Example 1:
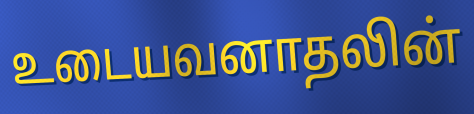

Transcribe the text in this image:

உடையவனாதலின்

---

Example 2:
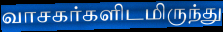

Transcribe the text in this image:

வாசகர்களிடமிருந்து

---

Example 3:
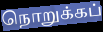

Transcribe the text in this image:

நொறுக்கப்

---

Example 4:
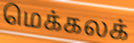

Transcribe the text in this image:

மெக்கலக்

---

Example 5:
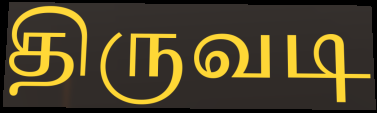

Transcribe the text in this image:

திருவடி